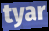
tyar